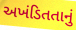
અખંડિતતાનું